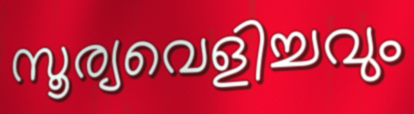
സൂര്യവെളിച്ചവും